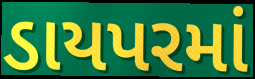
ડાયપરમાં